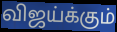
விஜய்க்கும்